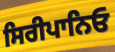
ਸਿਰੀਪਾਨਿਓ